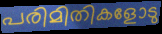
പരിമിതികളോടു